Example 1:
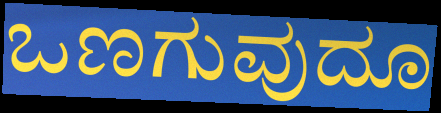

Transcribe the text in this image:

ಒಣಗುವುದೂ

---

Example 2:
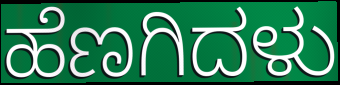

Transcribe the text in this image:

ಹೆಣಗಿದಳು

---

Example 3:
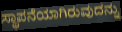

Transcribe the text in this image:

ಸ್ಥಾಪನೆಯಾಗಿರುವುದನ್ನು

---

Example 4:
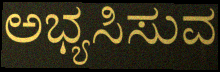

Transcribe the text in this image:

ಅಭ್ಯಸಿಸುವ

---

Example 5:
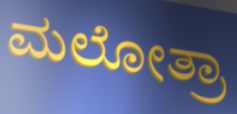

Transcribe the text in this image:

ಮಲೋತ್ರಾ